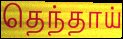
தெந்தாய்